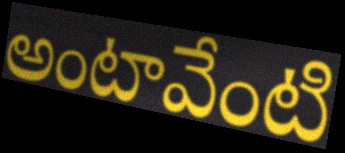
అంటావేంటి